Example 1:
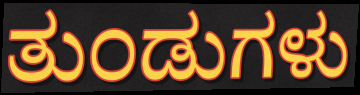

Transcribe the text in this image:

ತುಂಡುಗಳು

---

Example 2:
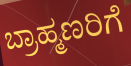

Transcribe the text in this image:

ಬ್ರಾಹ್ಮಣರಿಗೆ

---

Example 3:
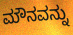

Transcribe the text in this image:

ಮೌನವನ್ನು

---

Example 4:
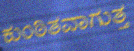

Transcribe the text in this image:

ಕುಂಠಿತವಾಗುತ್ತ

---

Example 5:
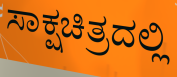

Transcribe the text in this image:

ಸಾಕ್ಷಚಿತ್ರದಲ್ಲಿ